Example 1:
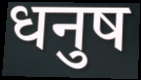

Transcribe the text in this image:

धनुष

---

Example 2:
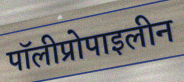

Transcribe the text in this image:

पॉलीप्रोपाइलीन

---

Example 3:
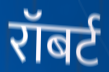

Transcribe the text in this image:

रॉबर्ट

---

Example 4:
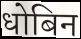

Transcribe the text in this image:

धोबिन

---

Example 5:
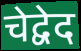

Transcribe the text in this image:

चेद्वेद